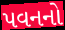
પવનનો